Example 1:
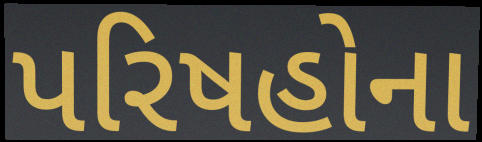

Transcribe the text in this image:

પરિષહોના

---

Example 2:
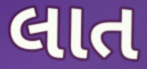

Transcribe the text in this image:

લાત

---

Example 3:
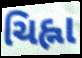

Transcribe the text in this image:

ચિહ્ના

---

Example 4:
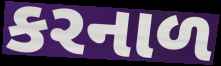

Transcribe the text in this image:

કરનાળ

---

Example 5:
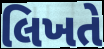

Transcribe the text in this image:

લિખતે